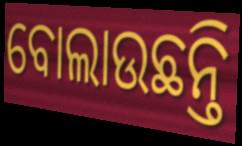
ବୋଲାଉଛନ୍ତି